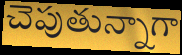
చెపుతున్నాగా